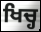
ਖਿਚ੍ਹ